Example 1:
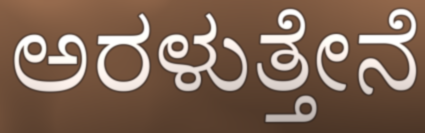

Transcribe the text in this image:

ಅರಳುತ್ತೇನೆ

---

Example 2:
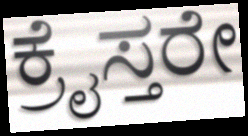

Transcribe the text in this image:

ಕ್ರೈಸ್ತರೇ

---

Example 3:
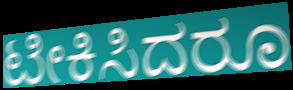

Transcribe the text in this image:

ಟೀಕಿಸಿದರೂ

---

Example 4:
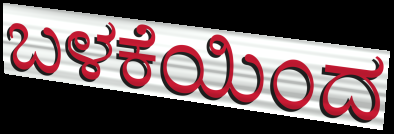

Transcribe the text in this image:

ಬಳಕೆಯಿಂದ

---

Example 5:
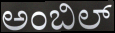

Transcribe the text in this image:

ಅಂಬಿಲ್